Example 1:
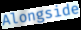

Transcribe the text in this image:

Alongside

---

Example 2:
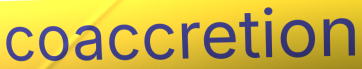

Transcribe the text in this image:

coaccretion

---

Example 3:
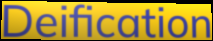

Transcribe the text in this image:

Deification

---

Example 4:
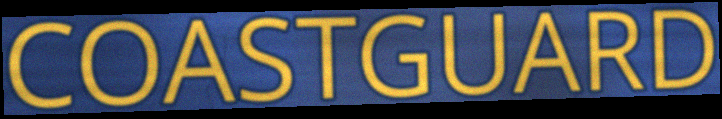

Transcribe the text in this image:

COASTGUARD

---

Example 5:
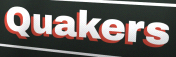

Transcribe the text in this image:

Quakers